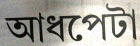
আধপেটা